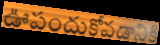
ఊపందుకోవడానికి